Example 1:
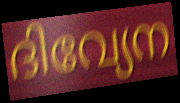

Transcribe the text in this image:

ദിവ്യേന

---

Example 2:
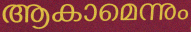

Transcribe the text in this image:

ആകാമെന്നും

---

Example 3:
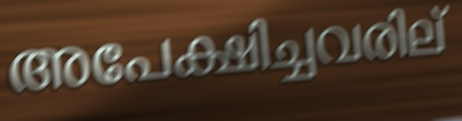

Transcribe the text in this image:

അപേക്ഷിച്ചവരില്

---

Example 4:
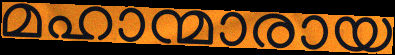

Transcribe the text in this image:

മഹാന്മാരായ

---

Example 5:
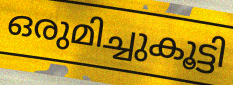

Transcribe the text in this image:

ഒരുമിച്ചുകൂട്ടി